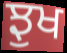
ਝੁਖ